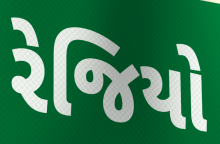
રેજિયો